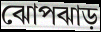
ঝোপঝাড়